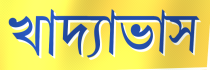
খাদ্যাভাস